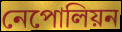
নেপোলিয়ন